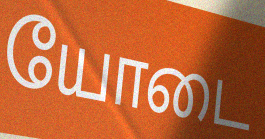
யோடை